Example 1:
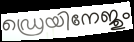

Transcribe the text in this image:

ഡ്രെയിനേജും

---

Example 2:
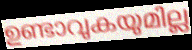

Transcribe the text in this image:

ഉണ്ടാവുകയുമില്ല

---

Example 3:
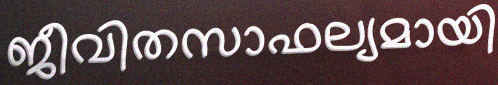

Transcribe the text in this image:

ജീവിതസാഫല്യമായി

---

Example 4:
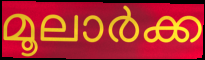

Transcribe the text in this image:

മൂലാർക്ക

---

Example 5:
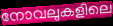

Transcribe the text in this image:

നോവലുകളിലെ